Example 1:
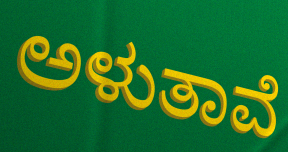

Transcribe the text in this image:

ಅಳುತಾವೆ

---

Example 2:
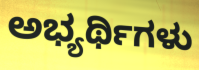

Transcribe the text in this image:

ಅಭ್ಯರ್ಥಿಗಳು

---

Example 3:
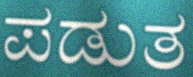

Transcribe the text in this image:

ಪಡುತ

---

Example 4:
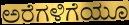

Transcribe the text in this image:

ಅರೆಗಳಿಗೆಯೂ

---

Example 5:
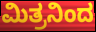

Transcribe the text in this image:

ಮಿತ್ರನಿಂದ